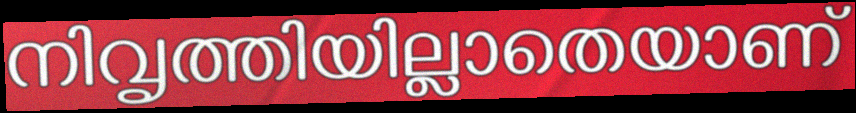
നിവൃത്തിയില്ലാതെയാണ്